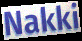
Nakki